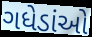
ગધેડાંઓ